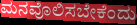
ಮನವೊಲಿಸಬೇಕೆಂದು